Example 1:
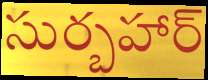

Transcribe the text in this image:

సుర్బహార్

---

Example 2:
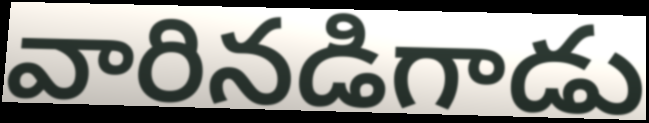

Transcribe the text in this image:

వారినడిగాడు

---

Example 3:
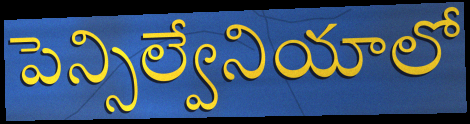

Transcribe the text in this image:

పెన్సిల్వేనియాలో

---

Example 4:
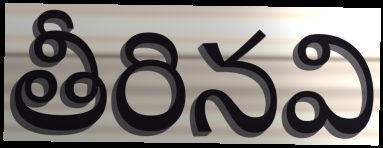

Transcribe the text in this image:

తీరినవి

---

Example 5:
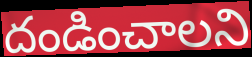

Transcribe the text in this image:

దండించాలని